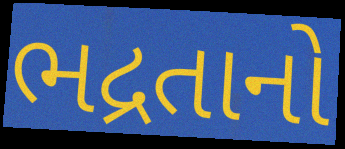
ભદ્રતાનો